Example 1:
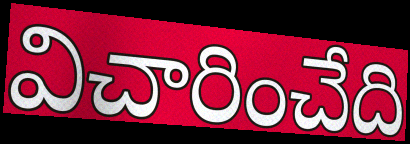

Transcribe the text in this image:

విచారించేది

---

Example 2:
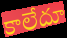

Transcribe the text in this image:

కాలేదూ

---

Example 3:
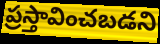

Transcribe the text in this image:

ప్రస్తావించబడని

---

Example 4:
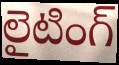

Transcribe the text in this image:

లైటింగ్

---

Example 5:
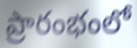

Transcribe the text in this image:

ప్రారంభంలో